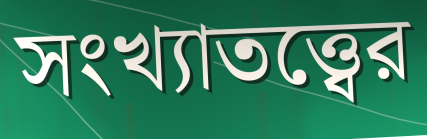
সংখ্যাতত্ত্বের